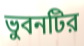
ভুবনটির